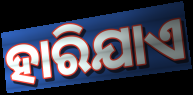
ହାରିଯାଏ